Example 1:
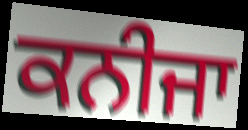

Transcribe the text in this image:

ਕਨੀਜਾ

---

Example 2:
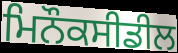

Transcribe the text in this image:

ਮਿਨੌਕਸੀਡੀਲ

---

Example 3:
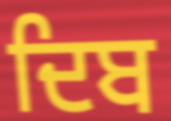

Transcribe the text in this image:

ਦਿਬ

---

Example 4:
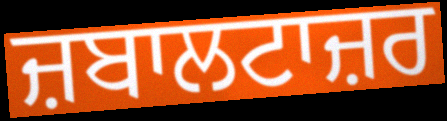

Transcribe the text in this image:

ਜ਼ਬਾਲਟਾਜ਼ਰ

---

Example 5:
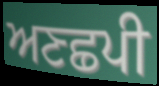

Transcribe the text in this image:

ਅਣਛਪੀ